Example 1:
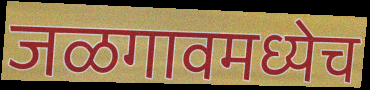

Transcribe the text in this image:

जळगावमध्येच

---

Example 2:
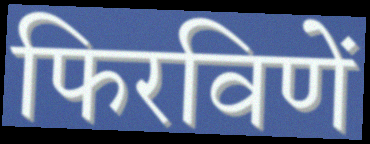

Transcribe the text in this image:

फिरविणें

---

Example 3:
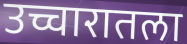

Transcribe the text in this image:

उच्चारातला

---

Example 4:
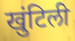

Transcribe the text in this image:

खुंटिली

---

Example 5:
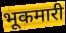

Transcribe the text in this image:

भूकमारी